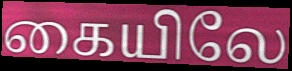
கையிலே